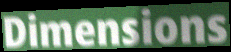
Dimensions